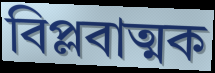
বিপ্লবাত্মক